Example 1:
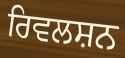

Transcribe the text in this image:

ਰਿਵਲਸ਼ਨ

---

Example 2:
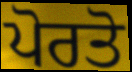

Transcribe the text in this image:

ਪੋਰਤੋ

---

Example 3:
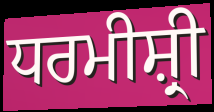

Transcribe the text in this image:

ਧਰਮੀਸ਼੍ਰੀ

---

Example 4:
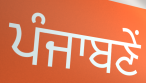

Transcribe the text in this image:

ਪੰਜਾਬਣੇਂ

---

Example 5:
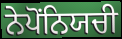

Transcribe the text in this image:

ਨੇਪੋਂਨਿਯਚੀ